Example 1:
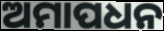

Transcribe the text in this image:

ଅମାପଧନ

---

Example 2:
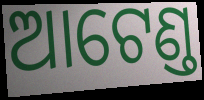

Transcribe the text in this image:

ଆଟେଣ୍ଡ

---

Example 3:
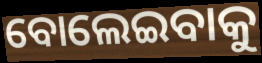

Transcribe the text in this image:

ବୋଲେଇବାକୁ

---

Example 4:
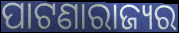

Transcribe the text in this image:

ପାଟଣାରାଜ୍ୟର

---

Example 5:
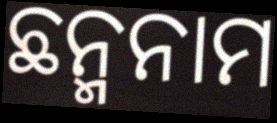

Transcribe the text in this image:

ଛନ୍ମନାମ